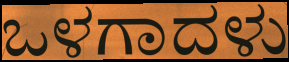
ಒಳಗಾದಳು